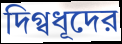
দিগ্বধূদের